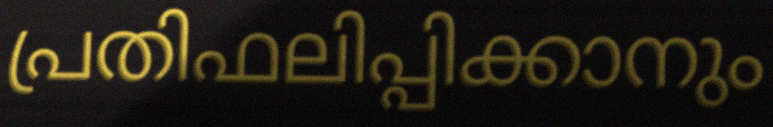
പ്രതിഫലിപ്പിക്കാനും